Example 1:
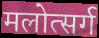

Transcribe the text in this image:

मलोत्सर्ग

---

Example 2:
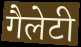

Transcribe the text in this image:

गैलेटी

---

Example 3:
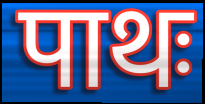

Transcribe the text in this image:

पाथः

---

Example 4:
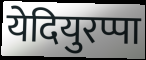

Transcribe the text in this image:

येदियुरप्पा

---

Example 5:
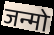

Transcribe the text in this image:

जन्मो